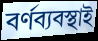
বর্ণব্যবস্থাই